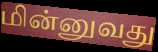
மின்னுவது